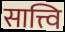
सात्त्वि